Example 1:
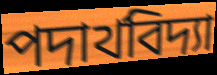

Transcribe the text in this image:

পদাৰ্থবিদ্যা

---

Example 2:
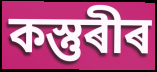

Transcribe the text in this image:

কস্তুৰীৰ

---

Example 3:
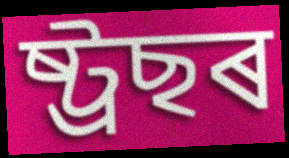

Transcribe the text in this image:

ষ্ট্ৰছৰ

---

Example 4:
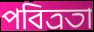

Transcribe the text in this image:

পবিত্ৰতা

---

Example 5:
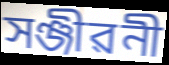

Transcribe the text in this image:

সঞ্জীৱনী